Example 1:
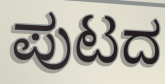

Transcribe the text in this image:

ಪುಟದ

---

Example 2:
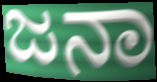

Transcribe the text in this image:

ಜನಾ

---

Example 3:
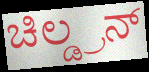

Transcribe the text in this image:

ಚಿಲ್ಡ್ರನ್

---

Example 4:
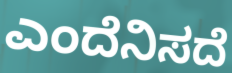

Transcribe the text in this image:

ಎಂದೆನಿಸದೆ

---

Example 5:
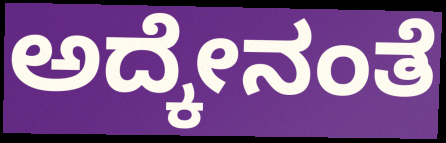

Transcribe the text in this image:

ಅದ್ಕೇನಂತೆ